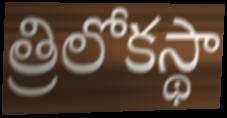
త్రిలోకస్థా